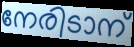
നേരിടാന്